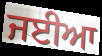
ਜਈਆ